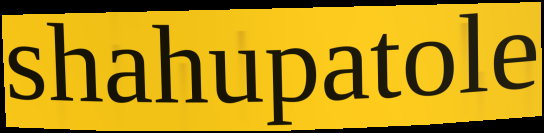
shahupatole